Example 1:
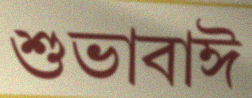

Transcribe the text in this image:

শুভাবাঈ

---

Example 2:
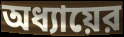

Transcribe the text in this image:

অধ্যায়ের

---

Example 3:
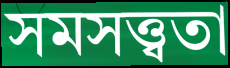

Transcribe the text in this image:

সমসত্ত্বতা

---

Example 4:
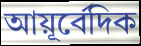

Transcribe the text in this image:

আয়ূর্বেদিক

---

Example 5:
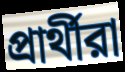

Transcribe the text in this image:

প্রার্থীরা